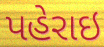
પહેરાઇ